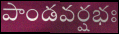
పాండవర్షభః